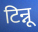
टिन्नू